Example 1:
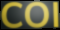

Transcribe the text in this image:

COI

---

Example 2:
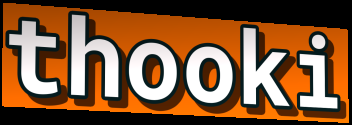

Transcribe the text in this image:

thooki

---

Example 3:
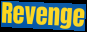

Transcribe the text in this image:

Revenge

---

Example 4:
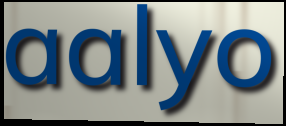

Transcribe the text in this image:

aalyo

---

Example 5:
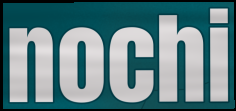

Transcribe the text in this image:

nochi